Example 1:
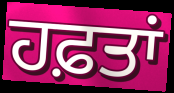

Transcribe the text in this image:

ਹਫ਼ਤਾਂ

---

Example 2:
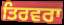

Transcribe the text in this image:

ਤਿਰਵਰਾ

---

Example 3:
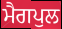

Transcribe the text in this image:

ਮੈਗਪੁਲ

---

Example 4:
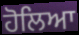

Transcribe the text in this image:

ਹੋਲਿਆ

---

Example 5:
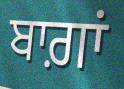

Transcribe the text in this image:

ਬਾਗ਼ਾਂ